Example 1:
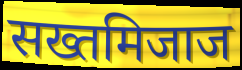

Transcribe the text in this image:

सख्तमिजाज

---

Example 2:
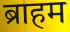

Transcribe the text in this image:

ब्राहम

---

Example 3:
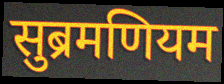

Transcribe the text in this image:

सुब्रमणियम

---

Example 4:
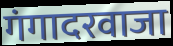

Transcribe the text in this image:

गंगादरवाजा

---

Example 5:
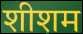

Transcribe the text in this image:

शीशम